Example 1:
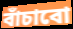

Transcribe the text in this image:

বাঁচাবো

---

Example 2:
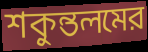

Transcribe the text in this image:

শকুন্তলমের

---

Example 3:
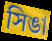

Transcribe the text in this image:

সিঙা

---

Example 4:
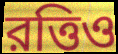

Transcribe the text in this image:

রত্তিও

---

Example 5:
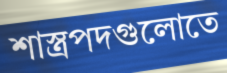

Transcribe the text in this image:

শাস্ত্রপদগুলোতে